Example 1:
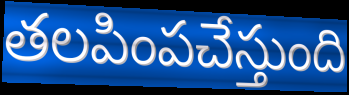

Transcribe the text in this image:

తలపింపచేస్తుంది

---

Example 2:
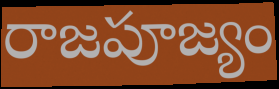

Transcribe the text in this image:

రాజపూజ్యం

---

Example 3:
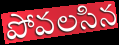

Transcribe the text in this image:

పోవలసిన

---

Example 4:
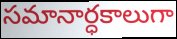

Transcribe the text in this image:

సమానార్ధకాలుగా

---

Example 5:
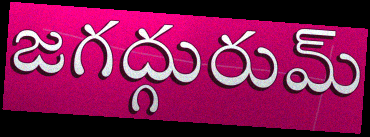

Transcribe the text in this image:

జగద్గురుమ్